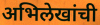
अभिलेखांची